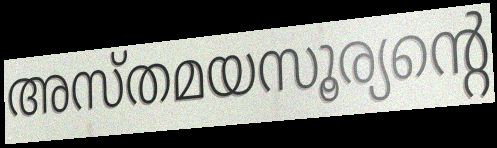
അസ്തമയസൂര്യന്റെ